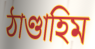
ঠাণ্ডাহিম